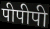
पीपीपी